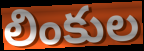
లింకుల